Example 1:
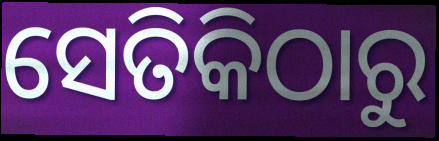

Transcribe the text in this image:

ସେତିକିଠାରୁ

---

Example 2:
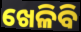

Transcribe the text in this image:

ଖେଳିବି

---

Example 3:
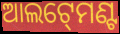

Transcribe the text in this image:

ଆଲଟ୍‍ମେଣ୍ଟ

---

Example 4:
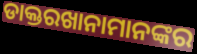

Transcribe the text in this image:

ଡାକ୍ତରଖାନାମାନଙ୍କର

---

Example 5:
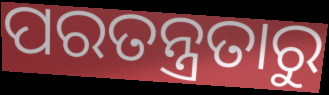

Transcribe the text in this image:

ପରତନ୍ତ୍ରତାରୁ